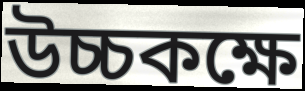
উচ্চকক্ষে